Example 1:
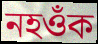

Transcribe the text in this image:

নহওঁক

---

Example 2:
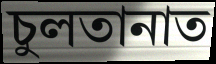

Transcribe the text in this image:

চুলতানাত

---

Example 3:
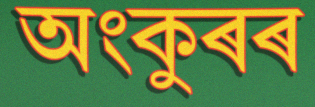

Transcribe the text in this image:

অংকুৰৰ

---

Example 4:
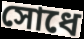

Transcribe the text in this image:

সোধে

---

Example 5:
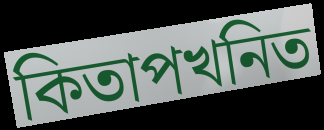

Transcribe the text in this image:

কিতাপখনিত